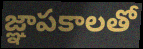
జ్ఞాపకాలతో